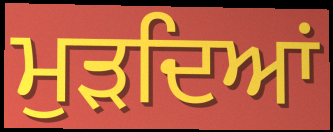
ਮੁੜਦਿਆਂ